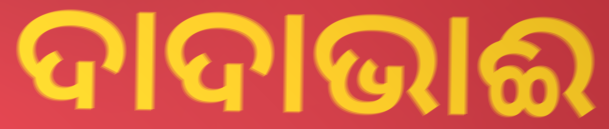
ଦାଦାଭାଈ